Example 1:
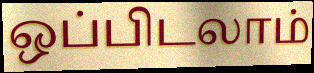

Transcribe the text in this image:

ஒப்பிடலாம்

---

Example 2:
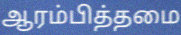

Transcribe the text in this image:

ஆரம்பித்தமை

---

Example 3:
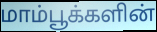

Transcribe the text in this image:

மாம்பூக்களின்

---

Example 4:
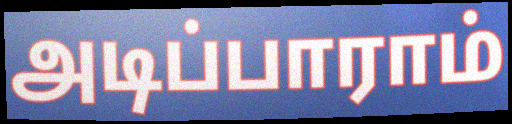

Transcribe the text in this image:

அடிப்பாராம்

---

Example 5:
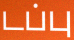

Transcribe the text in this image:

டப்பு